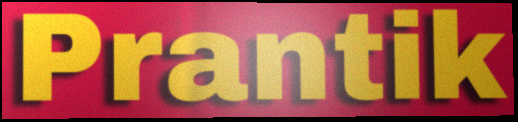
Prantik